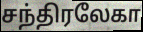
சந்திரலேகா